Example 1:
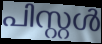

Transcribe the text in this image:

പിസ്റ്റൾ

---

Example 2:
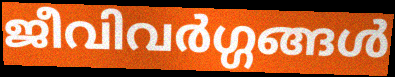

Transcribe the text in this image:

ജീവിവർഗ്ഗങ്ങൾ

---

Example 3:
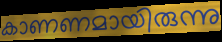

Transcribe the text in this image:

കാണണമായിരുന്നു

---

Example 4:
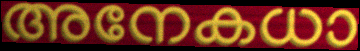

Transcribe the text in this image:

അനേകധാ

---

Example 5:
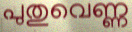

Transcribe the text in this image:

പുതുവെണ്ണ